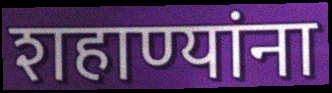
शहाण्यांना